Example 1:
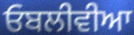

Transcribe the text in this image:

ਓਬਲੀਵੀਆ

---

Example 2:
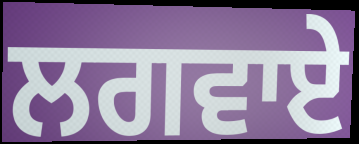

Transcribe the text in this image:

ਲਗਵਾਏ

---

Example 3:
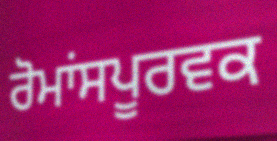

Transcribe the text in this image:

ਰੋਮਾਂਸਪੂਰਵਕ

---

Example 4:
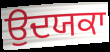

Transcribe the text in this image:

ਉਦਯਕਾ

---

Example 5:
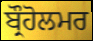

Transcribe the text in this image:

ਬ੍ਰੌਹੋਲਮਰ